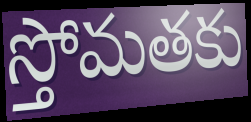
స్తోమతకు